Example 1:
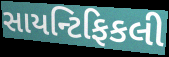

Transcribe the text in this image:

સાયન્ટિફિકલી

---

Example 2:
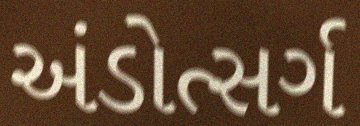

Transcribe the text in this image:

અંડોત્સર્ગ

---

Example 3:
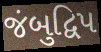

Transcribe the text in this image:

જંબુદ્વિપ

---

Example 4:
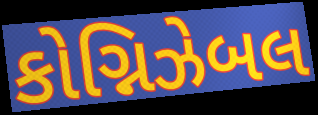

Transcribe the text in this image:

કોગ્નિઝેબલ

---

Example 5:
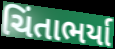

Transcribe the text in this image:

ચિંતાભર્યા